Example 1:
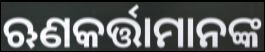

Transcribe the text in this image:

ଋଣକର୍ତ୍ତାମାନଙ୍କ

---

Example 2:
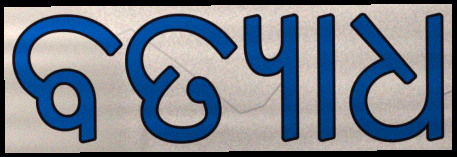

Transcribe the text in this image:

ବତ୍ୟାଧ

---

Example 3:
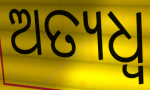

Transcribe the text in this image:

ଅତ୍ୟଧ୍ୱ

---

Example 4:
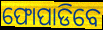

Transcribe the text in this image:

ଫୋପାଡିବେ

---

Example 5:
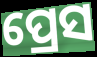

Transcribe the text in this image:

ପ୍ରେସ